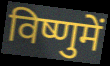
विष्णुमें